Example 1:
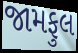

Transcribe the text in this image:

જામફુલ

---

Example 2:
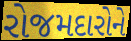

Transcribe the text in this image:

રોજમદારોને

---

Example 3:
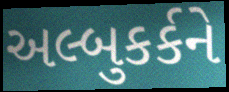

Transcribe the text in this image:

અલ્બુકર્કને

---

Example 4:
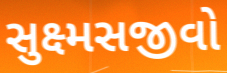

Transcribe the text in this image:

સુક્ષ્મસજીવો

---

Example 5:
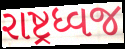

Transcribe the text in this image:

રાષ્ટ્રધ્વજ